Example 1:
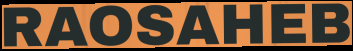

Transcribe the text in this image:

RAOSAHEB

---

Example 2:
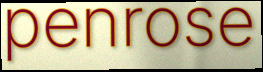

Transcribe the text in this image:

penrose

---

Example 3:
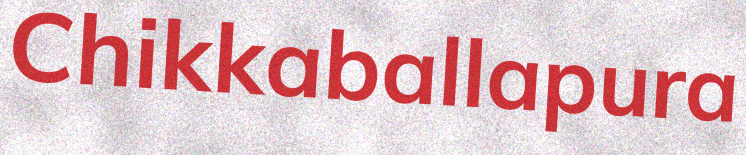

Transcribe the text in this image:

Chikkaballapura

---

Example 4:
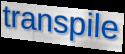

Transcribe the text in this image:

transpile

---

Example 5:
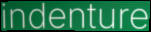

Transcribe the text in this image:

indenture